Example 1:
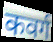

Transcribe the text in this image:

कवर्ग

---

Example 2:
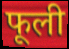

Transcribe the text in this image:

फूली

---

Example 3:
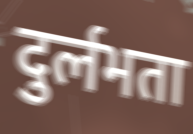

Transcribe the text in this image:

दुर्लभता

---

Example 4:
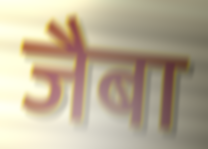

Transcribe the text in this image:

जैबा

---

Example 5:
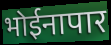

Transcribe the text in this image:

भोईनापार